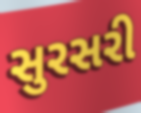
સુરસરી